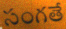
సంగతే